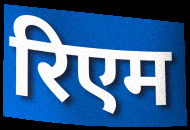
रिएम